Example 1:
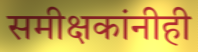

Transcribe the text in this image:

समीक्षकांनीही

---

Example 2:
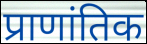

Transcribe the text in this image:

प्राणांतिक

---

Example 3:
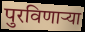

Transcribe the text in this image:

पुरविणार्‍या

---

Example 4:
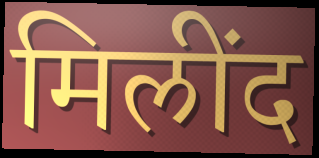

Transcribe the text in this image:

मिलींद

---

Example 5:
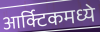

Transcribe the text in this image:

आर्क्टिकमध्ये